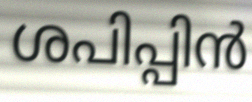
ശപിപ്പിൻ